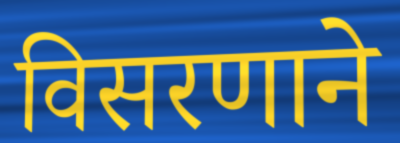
विसरणाने